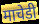
माचेडी